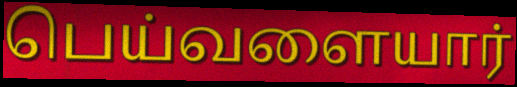
பெய்வளையார்